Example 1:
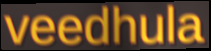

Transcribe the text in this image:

veedhula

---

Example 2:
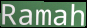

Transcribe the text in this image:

Ramah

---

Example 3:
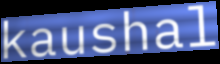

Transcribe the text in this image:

kaushal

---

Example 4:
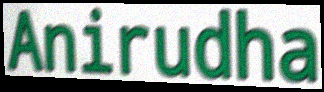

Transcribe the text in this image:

Anirudha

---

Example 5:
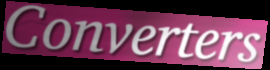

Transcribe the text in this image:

Converters